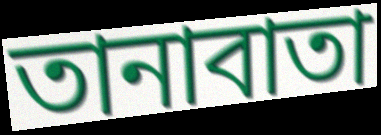
তানাবাতা